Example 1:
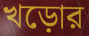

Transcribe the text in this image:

খড়োর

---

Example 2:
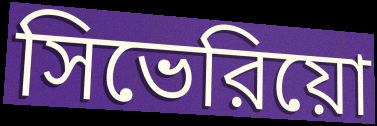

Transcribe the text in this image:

সিভেরিয়ো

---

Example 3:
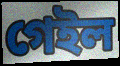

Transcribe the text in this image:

গেইল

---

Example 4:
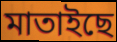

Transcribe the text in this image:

মাতাইছে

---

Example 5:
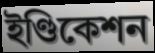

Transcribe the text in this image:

ইণ্ডিকেশন